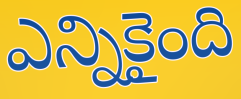
ఎన్నికైంది